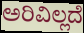
ಅರಿವಿಲ್ಲದೆ